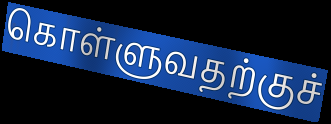
கொள்ளுவதற்குச்